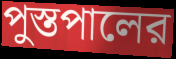
পুস্তপালের